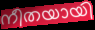
നീതയായി